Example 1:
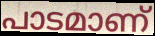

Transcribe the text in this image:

പാടമാണ്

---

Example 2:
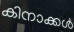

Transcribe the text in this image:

കിനാക്കൾ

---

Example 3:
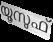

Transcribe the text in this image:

യൂസുഫ്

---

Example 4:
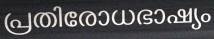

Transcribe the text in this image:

പ്രതിരോധഭാഷ്യം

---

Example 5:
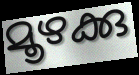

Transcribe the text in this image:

മൂഴക്കു